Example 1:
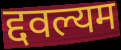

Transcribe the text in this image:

द्दवल्यम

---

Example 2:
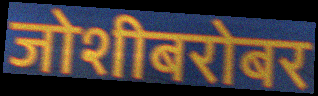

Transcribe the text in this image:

जोशीबरोबर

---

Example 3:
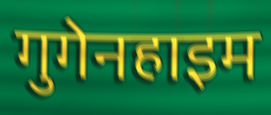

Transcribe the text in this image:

गुगेनहाइम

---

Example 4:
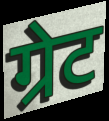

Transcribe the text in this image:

ग्रेट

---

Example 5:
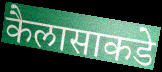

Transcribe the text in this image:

कैलासाकडे